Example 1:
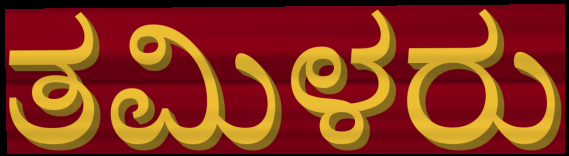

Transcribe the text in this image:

ತಮಿಳರು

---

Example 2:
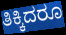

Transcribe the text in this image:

ತಿಕ್ಕಿದರೂ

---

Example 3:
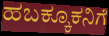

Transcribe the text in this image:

ಹಬಕ್ಕೂಕನಿಗೆ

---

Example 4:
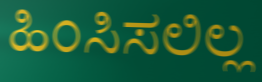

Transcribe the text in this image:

ಹಿಂಸಿಸಲಿಲ್ಲ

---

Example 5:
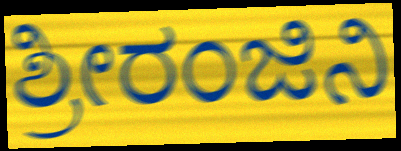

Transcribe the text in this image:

ಶ್ರೀರಂಜಿನಿ